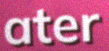
ater